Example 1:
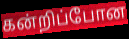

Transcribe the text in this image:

கன்றிப்போன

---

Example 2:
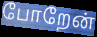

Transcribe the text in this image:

போறேன்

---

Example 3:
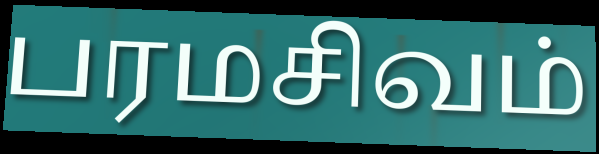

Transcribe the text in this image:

பரமசிவம்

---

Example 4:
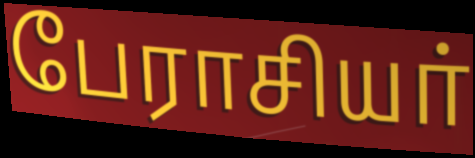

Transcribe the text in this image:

பேராசியர்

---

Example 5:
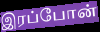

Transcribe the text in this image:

இரப்போன்